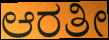
ಆರತೀ